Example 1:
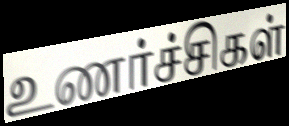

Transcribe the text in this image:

உணர்ச்சிகள்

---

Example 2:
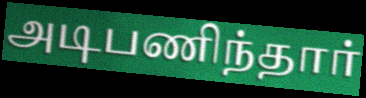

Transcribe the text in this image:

அடிபணிந்தார்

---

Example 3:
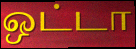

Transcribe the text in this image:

ஒட்டா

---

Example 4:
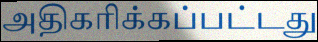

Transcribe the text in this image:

அதிகரிக்கப்பட்டது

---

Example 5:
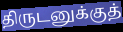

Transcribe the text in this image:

திருடனுக்குத்